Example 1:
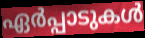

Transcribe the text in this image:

ഏർപ്പാടുകൾ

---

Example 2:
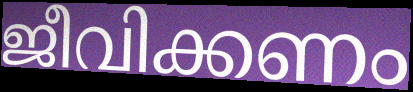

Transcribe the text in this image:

ജീവിക്കണം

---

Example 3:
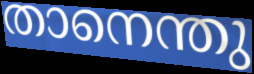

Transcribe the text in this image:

താനെന്തു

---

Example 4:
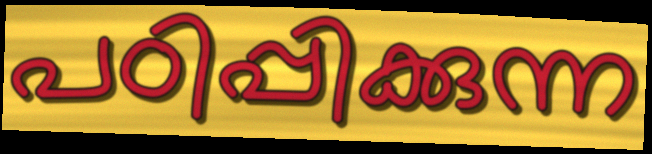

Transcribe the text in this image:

പഠിപ്പിക്കുന്ന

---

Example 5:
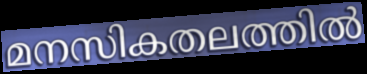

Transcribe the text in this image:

മനസികതലത്തിൽ